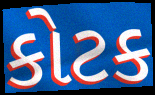
કોટક